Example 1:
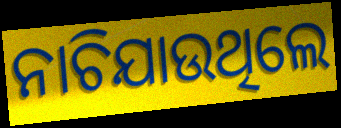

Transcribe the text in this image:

ନାଚିଯାଉଥିଲେ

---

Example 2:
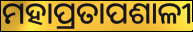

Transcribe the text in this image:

ମହାପ୍ରତାପଶାଳୀ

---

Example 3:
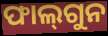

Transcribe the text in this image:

ଫାଲ୍‍ଗୁନ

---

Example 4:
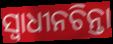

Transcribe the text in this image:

ସ୍ୱାଧୀନଚିନ୍ତା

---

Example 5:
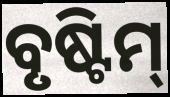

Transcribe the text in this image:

ବୃଷ୍ଟିମ୍